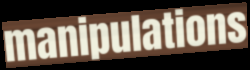
manipulations